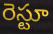
రెస్టూ